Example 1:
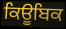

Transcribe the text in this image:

ਕਿਊਬਿਕ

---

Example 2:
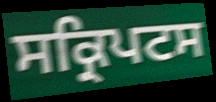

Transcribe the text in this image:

ਸਕ੍ਰਿਪਟਸ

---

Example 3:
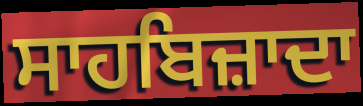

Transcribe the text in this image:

ਸਾਹਬਿਜ਼ਾਦਾ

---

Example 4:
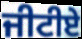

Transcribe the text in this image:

ਜੀਟੀਏ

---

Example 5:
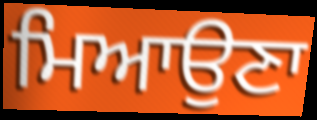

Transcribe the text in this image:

ਮਿਆਉਣਾ